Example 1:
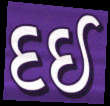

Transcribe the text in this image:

દઈ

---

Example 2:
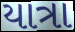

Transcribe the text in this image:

યાત્રા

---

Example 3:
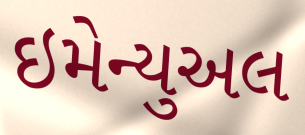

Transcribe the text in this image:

ઇમેન્યુઅલ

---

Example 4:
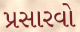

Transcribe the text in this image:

પ્રસારવો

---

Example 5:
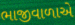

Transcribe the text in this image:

ભાજીવાળાએ